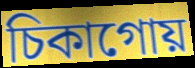
চিকাগোয়